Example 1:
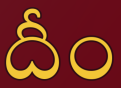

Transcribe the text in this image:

దీం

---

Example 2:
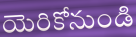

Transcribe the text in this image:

యెరికోనుండి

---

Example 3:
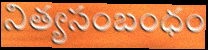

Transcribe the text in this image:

నిత్యసంబంధం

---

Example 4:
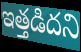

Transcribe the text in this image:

ఇత్తడిదని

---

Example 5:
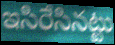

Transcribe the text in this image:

ఇసిరేసినట్టు